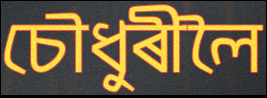
চৌধুৰীলৈ